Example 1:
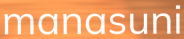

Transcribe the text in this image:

manasuni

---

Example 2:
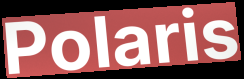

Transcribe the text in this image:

Polaris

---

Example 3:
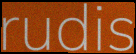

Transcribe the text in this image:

rudis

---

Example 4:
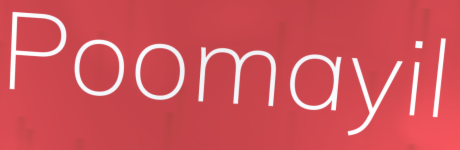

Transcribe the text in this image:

Poomayil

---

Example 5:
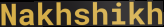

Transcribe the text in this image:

Nakhshikh